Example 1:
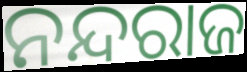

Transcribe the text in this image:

ନନ୍ଦରାଜ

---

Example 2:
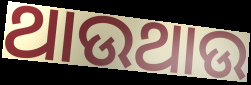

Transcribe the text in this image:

ଥାଉଥାଉ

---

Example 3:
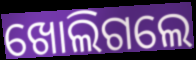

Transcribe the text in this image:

ଖୋଲିଗଲେ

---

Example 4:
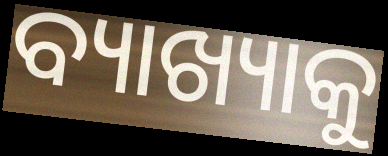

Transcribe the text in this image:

ବ୍ୟାଖ୍ୟାକୁ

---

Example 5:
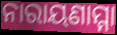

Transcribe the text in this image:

ନାରାୟଣାମ୍ମା